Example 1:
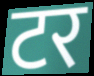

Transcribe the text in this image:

टर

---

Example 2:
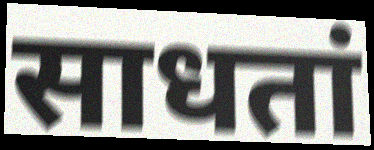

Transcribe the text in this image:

साधतां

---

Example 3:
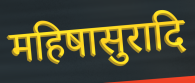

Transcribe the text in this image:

महिषासुरादि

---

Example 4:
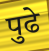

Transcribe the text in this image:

पुढे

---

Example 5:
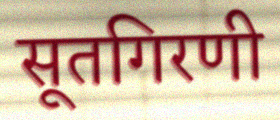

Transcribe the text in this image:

सूतगिरणी